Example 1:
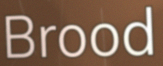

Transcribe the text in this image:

Brood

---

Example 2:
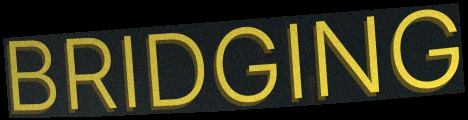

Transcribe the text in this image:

BRIDGING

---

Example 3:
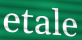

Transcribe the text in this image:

etale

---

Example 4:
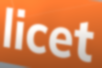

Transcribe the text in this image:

licet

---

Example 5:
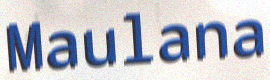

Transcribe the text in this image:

Maulana